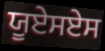
ਯੂਏਸਏਸ